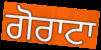
ਗੋਰਾਟਾ